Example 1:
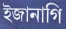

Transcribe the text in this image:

ইজানাগি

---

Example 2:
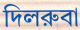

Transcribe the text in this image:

দিলরুবা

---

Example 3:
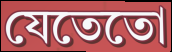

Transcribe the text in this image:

যেতেতো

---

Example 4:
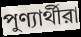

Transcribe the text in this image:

পুণ্যার্থীরা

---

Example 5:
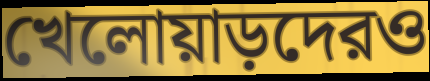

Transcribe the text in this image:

খেলোয়াড়দেরও